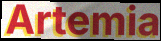
Artemia